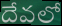
దేవలో